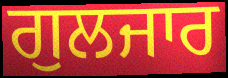
ਗੁਲਜਾਰ